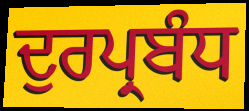
ਦੁਰਪ੍ਰਬੰਧ